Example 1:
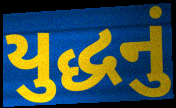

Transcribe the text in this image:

યુદ્ધનું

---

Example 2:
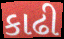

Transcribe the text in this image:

કાઢી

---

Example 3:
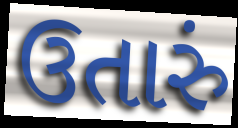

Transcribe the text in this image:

ઉતારું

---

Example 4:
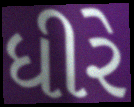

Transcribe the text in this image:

ધીરે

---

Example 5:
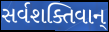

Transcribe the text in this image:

સર્વશક્તિવાન્